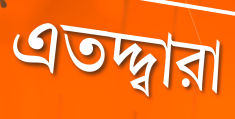
এতদ্দ্বারা